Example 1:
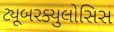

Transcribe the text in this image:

ટ્યૂબરક્યુલોસિસ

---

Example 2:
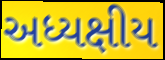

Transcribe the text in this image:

અધ્યક્ષીય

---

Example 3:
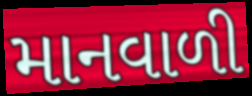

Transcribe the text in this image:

માનવાળી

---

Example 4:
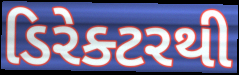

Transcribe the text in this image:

ડિરેક્ટરથી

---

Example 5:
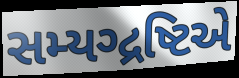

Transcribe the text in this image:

સમ્યગ્દ્રષ્ટિએ